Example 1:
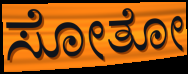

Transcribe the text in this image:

ಸೋತೋ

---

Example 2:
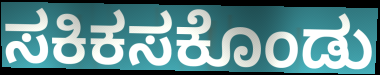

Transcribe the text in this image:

ಸಕಿಕಸಕೊಂಡು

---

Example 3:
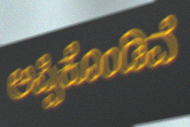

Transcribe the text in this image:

ಅಪ್ಪಿಕೊಂಡಿವೆ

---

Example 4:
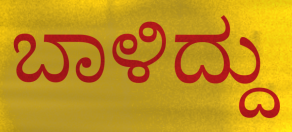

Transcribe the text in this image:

ಬಾಳಿದ್ದು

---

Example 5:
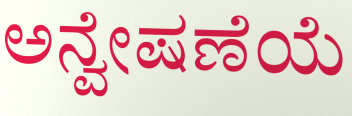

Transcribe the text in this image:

ಅನ್ವೇಷಣೆಯೆ